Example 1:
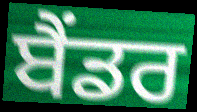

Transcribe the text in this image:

ਬੈਂਡਰ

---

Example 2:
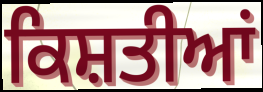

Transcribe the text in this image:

ਕਿਸ਼ਤੀਆਂ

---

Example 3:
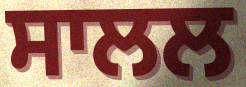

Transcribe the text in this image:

ਸਾਲਲ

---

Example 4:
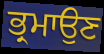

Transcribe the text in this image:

ਭ੍ਰਮਾਉਣ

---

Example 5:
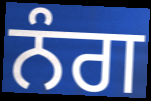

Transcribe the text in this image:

ਨੰਗ